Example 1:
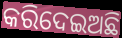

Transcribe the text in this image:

କରିଦେଇଅଛି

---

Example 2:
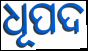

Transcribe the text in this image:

ଧୂପଦ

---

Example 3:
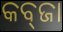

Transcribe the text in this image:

କବ୍‌ଜା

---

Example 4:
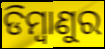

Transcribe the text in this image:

ଡିମ୍ବାଣୁର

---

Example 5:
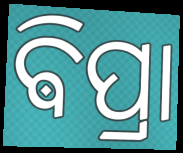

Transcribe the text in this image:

ଵିପ୍ରା